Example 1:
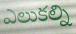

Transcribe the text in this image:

ఎలుకల్ని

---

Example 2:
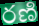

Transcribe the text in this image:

రణి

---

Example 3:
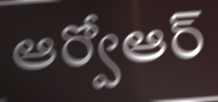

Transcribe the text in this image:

ఆర్వోఆర్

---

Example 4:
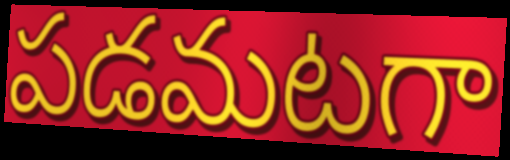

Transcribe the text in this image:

పడమటగా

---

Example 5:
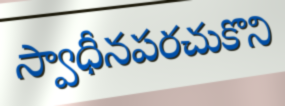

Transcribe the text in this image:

స్వాధీనపరచుకొని